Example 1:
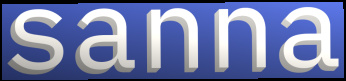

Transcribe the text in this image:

sanna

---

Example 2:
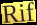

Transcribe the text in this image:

Rif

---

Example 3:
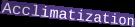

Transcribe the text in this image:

Acclimatization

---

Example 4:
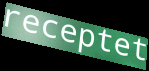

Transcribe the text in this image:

receptet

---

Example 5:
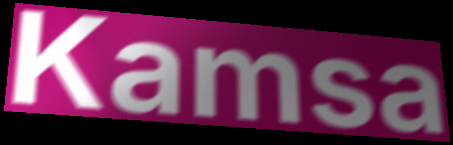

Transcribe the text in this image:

Kamsa